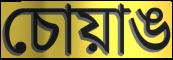
চোয়াঙ